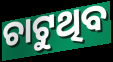
ଚାଟୁଥିବ